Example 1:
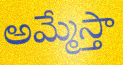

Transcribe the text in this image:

అమ్మేస్తా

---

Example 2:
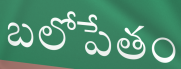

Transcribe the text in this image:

బలోపేతం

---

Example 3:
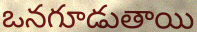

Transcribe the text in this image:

ఒనగూడుతాయి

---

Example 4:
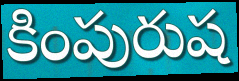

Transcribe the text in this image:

కింపురుష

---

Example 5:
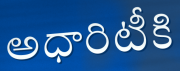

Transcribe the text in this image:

అధారిటీకి